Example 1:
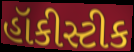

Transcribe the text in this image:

હૉકીસ્ટીક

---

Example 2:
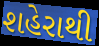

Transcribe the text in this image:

શહેરાથી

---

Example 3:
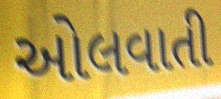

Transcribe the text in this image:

ઓલવાતી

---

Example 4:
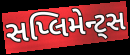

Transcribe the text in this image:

સપ્લિમેન્ટ્સ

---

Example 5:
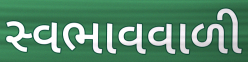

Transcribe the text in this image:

સ્વભાવવાળી